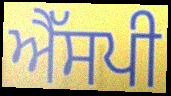
ਐੱਸਪੀ